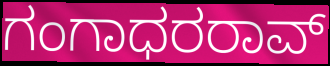
ಗಂಗಾಧರರಾವ್